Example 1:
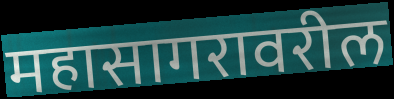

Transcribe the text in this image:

महासागरावरील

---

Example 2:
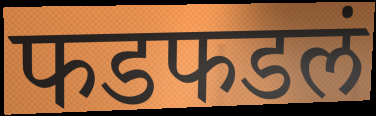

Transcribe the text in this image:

फडफडलं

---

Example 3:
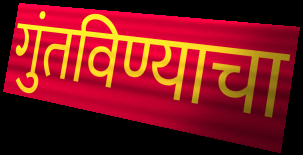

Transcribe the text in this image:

गुंतविण्याचा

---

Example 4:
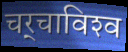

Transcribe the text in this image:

चर्चाविश्व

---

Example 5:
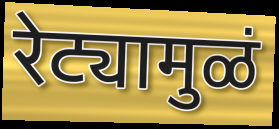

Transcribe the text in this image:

रेट्यामुळं